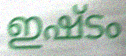
ഇഷ്ടം